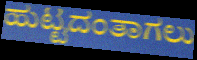
ಹುಟ್ಟದಂತಾಗಲು